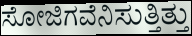
ಸೋಜಿಗವೆನಿಸುತ್ತಿತ್ತು